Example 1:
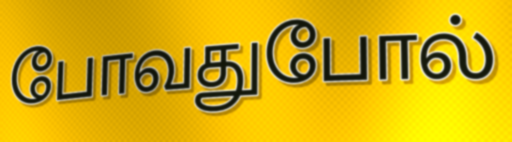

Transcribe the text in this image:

போவதுபோல்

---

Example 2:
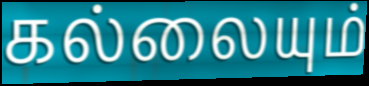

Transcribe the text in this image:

கல்லையும்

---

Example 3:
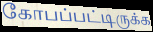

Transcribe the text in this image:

கோபப்பட்டிருக்க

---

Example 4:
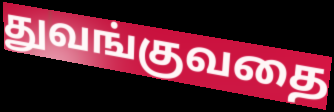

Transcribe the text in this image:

துவங்குவதை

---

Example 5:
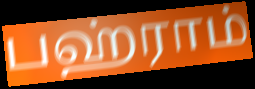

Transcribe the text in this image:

பஹ்ராம்